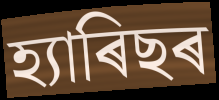
হ্যাৰিছৰ